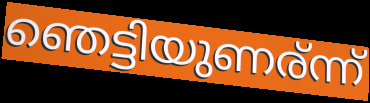
ഞെട്ടിയുണര്ന്ന്